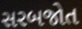
સરબજોત